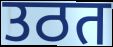
उठत